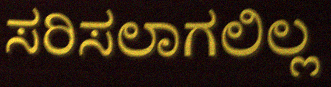
ಸರಿಸಲಾಗಲಿಲ್ಲ